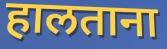
हालताना